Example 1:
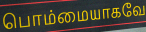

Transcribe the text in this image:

பொம்மையாகவே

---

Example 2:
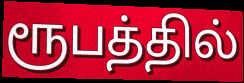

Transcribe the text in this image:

ரூபத்தில்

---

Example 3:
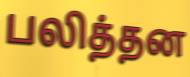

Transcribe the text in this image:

பலித்தன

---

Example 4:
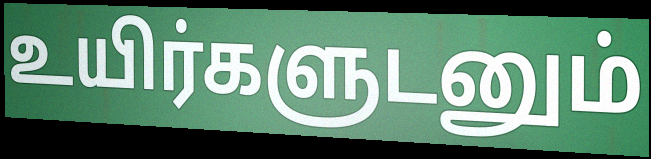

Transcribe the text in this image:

உயிர்களுடனும்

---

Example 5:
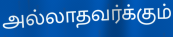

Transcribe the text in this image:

அல்லாதவர்க்கும்